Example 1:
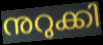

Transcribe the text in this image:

നുറുക്കി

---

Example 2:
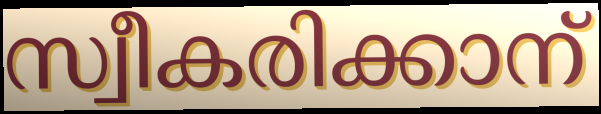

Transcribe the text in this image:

സ്വീകരിക്കാന്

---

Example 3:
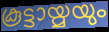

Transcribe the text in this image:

കൂട്ടായ്മയും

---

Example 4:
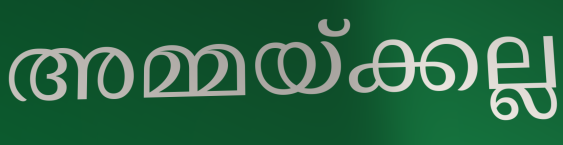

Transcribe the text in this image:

അമ്മയ്ക്കല്ല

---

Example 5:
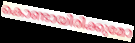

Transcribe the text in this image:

കൊണ്ടായിരിക്കുമോ